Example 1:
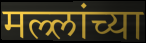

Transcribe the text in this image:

मल्लांच्या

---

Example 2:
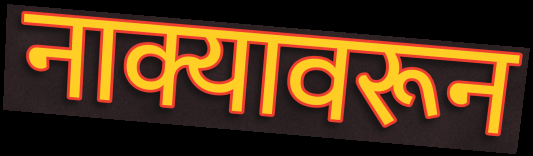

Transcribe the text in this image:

नाक्यावरून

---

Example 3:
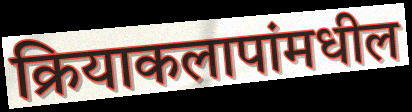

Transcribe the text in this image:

क्रियाकलापांमधील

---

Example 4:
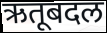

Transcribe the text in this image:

ऋतूबदल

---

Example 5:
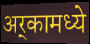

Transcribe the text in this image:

अर्कामध्ये